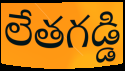
లేతగడ్డి